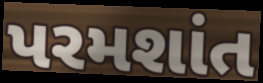
પરમશાંત